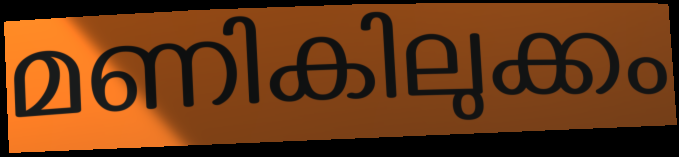
മണികിലുക്കം